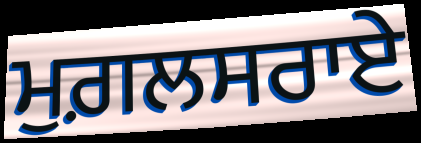
ਮੁਗ਼ਲਸਰਾਏ